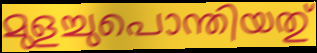
മുളച്ചുപൊന്തിയതു്